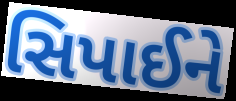
સિપાઈને